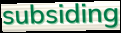
subsiding